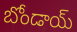
బోండాయ్